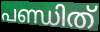
പണ്ഡിത്